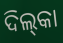
ଦିଲ୍‌କା